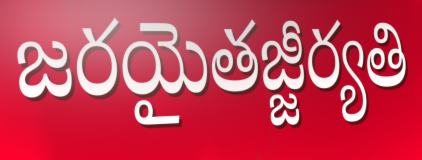
జరయైతజ్జీర్యతి